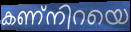
കണ്നിറയെ